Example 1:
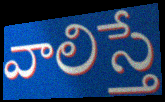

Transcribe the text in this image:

వాలిస్తే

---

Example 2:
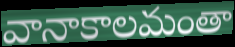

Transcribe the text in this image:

వానాకాలమంతా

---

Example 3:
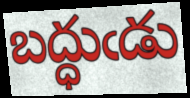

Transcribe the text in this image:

బద్ధుఁడు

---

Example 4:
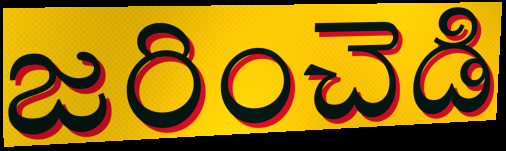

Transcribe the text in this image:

జరించెడి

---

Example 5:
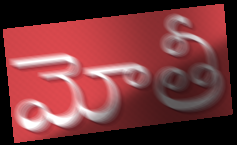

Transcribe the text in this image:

మోతీ